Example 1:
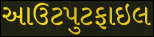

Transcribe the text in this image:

આઉટપુટફાઇલ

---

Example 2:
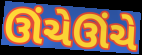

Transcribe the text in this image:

ઊંચેઊંચે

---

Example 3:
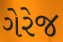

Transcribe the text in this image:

ગેરેજ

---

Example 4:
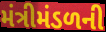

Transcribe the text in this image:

મંત્રીમંડળની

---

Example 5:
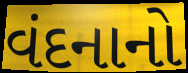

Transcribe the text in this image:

વંદનાનો